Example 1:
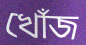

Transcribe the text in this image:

খোঁজ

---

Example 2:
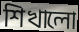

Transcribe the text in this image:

শিখালো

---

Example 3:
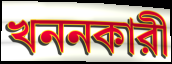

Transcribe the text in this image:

খননকারী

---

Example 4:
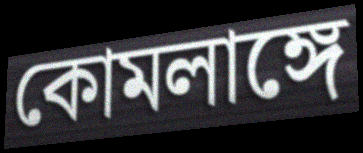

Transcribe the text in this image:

কোমলাঙ্গে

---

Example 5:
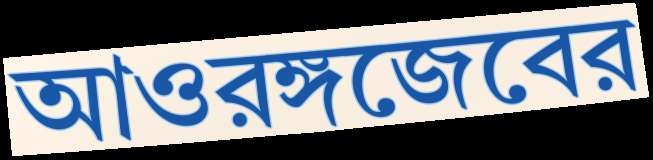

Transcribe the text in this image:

আওরঙ্গজেবের